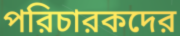
পরিচারকদের